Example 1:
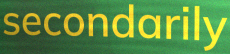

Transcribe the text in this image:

secondarily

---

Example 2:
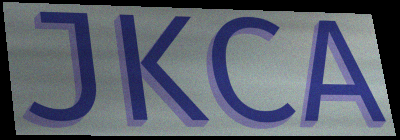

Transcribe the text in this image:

JKCA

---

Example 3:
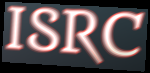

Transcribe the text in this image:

ISRC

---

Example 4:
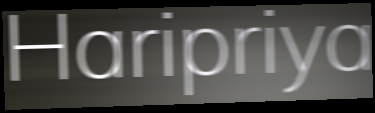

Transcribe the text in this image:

Haripriya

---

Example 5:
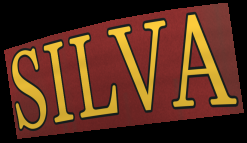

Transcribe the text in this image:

SILVA